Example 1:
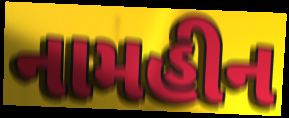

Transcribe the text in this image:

નામહીન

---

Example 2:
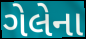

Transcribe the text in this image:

ગેલેના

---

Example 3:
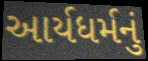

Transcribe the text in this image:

આર્યધર્મનું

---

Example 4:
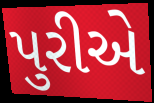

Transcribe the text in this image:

પુરીએ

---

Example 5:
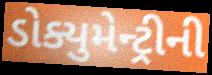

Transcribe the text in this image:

ડોક્યુમેન્ટ્રીની